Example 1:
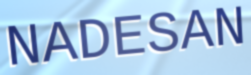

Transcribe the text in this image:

NADESAN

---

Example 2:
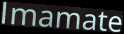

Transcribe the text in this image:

Imamate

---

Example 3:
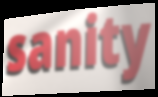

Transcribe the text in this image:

sanity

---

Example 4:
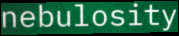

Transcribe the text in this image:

nebulosity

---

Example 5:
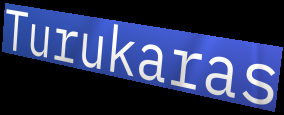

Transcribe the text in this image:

Turukaras